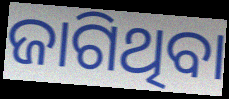
ଜାଗିଥିବା